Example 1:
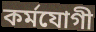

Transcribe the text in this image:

কর্মযোগী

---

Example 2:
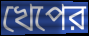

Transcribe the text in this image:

খেপের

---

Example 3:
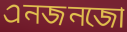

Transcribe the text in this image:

এনজনজো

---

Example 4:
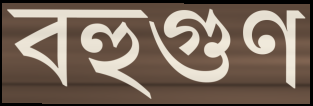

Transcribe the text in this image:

বহুগুণ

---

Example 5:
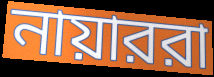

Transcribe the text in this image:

নায়াররা